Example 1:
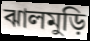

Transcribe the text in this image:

ঝালমুড়ি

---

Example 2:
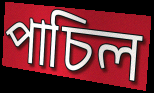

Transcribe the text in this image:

পাচিল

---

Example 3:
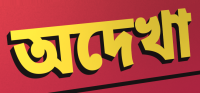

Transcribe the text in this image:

অদেখা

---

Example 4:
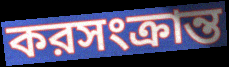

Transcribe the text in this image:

করসংক্রান্ত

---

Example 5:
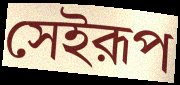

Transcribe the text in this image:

সেইরূপ